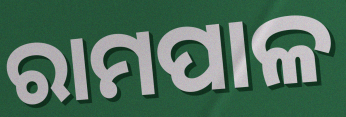
ରାମପାଳ